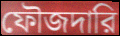
ফৌজদারি